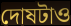
দোষটাও